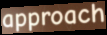
approach